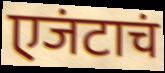
एजंटाचं